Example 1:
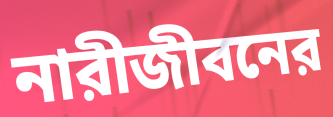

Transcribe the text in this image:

নারীজীবনের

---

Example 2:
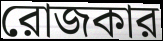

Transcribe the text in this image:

রোজকার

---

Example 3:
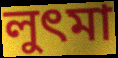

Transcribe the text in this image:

লুৎমা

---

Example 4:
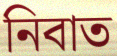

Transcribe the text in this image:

নিবাত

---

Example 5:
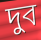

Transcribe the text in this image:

দুব